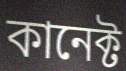
কানেক্ট